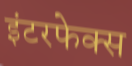
इंटरफेक्स